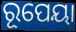
ରୂପେୟା